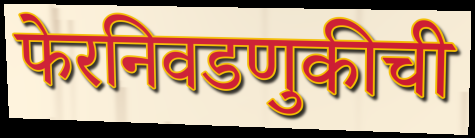
फेरनिवडणुकीची